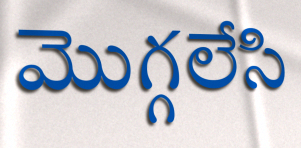
మొగ్గలేసి